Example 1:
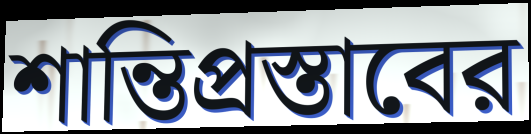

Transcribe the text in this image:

শান্তিপ্রস্তাবের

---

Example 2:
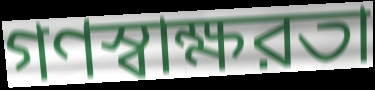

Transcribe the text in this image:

গণস্বাক্ষরতা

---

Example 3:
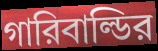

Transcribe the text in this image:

গারিবাল্ডির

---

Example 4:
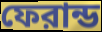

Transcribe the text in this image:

ফেরান্ড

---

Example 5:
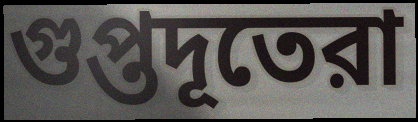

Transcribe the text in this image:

গুপ্তদূতেরা